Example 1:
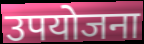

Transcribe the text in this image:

उपयोजना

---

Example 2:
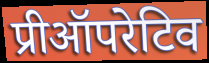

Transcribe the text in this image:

प्रीऑपरेटिव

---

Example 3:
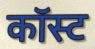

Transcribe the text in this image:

कॉस्ट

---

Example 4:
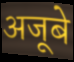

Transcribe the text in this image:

अजूबे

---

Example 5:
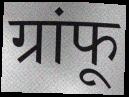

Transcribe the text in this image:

ग्रांफू